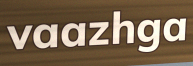
vaazhga